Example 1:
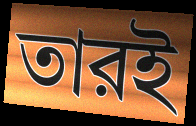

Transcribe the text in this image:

তারই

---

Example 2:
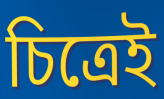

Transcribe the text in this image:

চিত্রেই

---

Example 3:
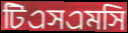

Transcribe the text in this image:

টিএসএমসি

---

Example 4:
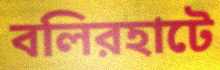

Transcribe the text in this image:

বলিরহাটে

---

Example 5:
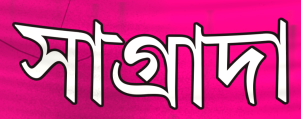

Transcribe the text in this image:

সাগ্রাদা